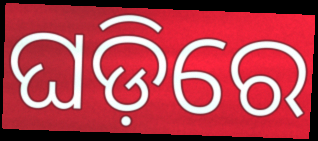
ଘଡ଼ିରେ